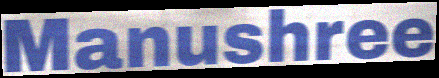
Manushree